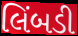
લિંબડી